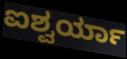
ಐಶ್ವರ್ಯಾ